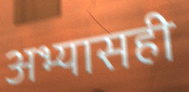
अभ्यासही